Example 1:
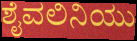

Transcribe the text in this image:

ಶೈವಲಿನಿಯು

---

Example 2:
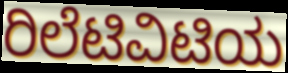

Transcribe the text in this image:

ರಿಲೆಟಿವಿಟಿಯ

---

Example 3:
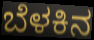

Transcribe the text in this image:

ಬೆಳಕಿನ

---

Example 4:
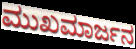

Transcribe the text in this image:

ಮುಖಮಾರ್ಜನ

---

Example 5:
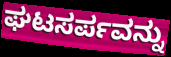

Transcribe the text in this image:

ಘಟಸರ್ಪವನ್ನು